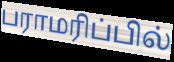
பராமரிப்பில்